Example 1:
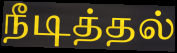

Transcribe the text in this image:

நீடித்தல்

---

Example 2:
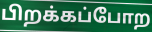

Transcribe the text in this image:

பிறக்கப்போற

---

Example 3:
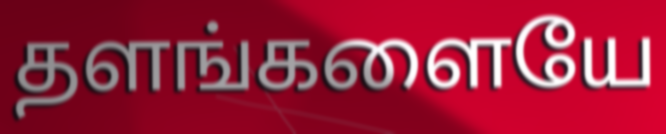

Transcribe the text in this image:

தளங்களையே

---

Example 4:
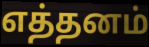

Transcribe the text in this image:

எத்தனம்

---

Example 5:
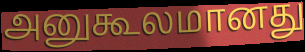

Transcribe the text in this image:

அனுகூலமானது